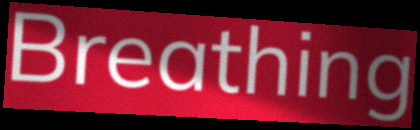
Breathing